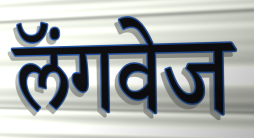
लॅंगवेज